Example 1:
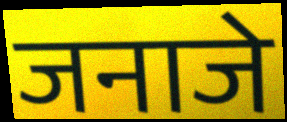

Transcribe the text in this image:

जनाजे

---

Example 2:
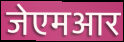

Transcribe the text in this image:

जेएमआर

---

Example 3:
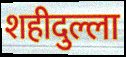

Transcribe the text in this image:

शहीदुल्ला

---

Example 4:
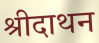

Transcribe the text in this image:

श्रीदाथन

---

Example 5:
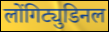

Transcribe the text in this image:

लोंगिट्युडिनल